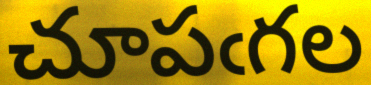
చూపఁగల